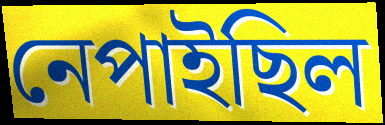
নেপাইছিল